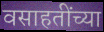
वसाहतींच्या